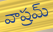
వాష్రమ్